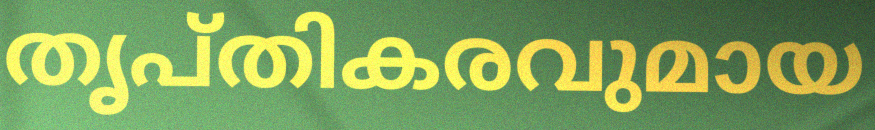
തൃപ്തികരവുമായ